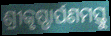
ଶ୍ରୀକୃଷ୍ଣାର୍ପଣମସ୍ତୁ